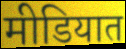
मीडियात